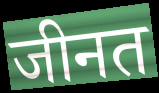
जीनत